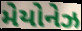
મેયોનેઝ